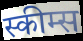
स्‍कीम्‍स